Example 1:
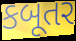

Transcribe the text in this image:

કબૂતર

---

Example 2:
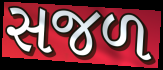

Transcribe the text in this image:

સજળ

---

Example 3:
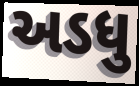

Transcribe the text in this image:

અડધુ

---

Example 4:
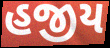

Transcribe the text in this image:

હજીય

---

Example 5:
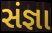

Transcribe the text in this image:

સંજ્ઞા